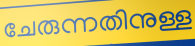
ചേരുന്നതിനുള്ള